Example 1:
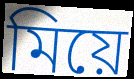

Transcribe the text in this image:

মিয়ে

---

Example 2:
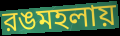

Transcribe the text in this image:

রঙমহলায়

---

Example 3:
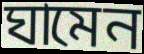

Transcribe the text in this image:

ঘামেন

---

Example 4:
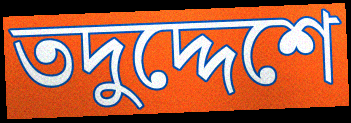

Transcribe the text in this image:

তদুদ্দেশে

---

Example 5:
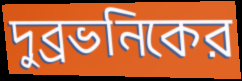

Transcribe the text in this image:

দুব্রভনিকের